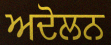
ਅਦੋਲਨ